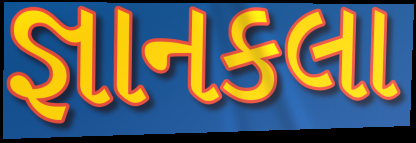
જ્ઞાનકલા